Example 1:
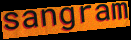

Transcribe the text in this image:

sangram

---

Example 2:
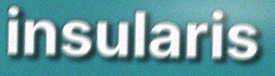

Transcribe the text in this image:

insularis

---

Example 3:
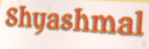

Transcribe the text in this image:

Shyashmal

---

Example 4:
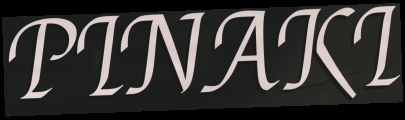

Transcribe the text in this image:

PINAKI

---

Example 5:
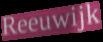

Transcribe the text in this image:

Reeuwijk